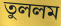
তুললম